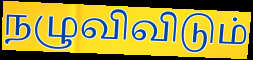
நழுவிவிடும்